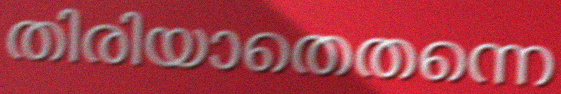
തിരിയാതെതന്നെ